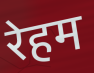
रेहम